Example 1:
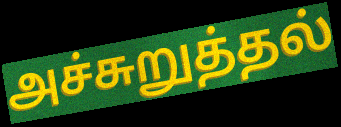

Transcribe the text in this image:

அச்சுறுத்தல்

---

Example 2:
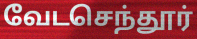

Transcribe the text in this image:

வேடசெந்தூர்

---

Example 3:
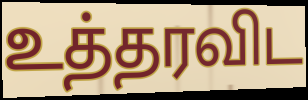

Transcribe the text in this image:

உத்தரவிட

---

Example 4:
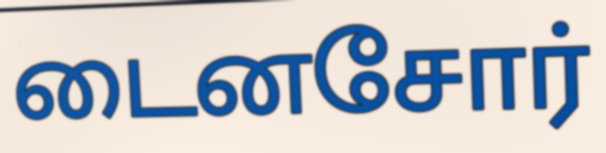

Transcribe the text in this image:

டைனசோர்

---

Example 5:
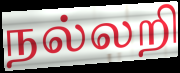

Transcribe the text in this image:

நல்லறி